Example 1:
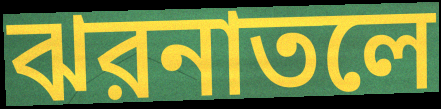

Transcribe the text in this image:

ঝরনাতলে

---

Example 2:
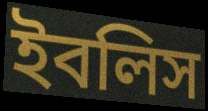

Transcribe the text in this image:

ইবলিস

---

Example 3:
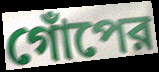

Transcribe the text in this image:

গোঁপের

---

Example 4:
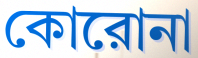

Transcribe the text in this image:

কোরোনা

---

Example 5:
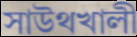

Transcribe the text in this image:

সাউথখালী